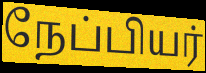
நேப்பியர்